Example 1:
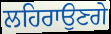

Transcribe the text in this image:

ਲਹਿਰਾਉਣਗੇ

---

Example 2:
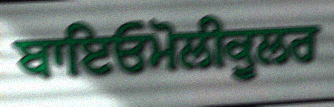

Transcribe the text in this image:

ਬਾਇਓਮੋਲੀਕੂਲਰ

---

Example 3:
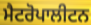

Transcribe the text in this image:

ਮੈਟਰੋਪਾਲੀਟਨ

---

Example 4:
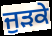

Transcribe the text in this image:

ਜੁੜਕੇ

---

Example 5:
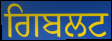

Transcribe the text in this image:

ਗਿਬਲਟ